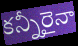
కన్నీరైనా